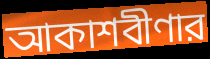
আকাশবীণার